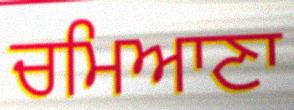
ਚਮਿਆਣਾ